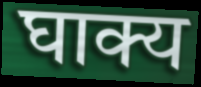
घाक्य